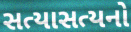
સત્યાસત્યનો